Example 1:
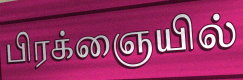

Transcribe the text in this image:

பிரக்ஞையில்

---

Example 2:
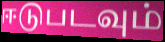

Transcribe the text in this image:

ஈடுபடவும்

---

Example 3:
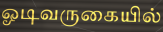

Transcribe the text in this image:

ஓடிவருகையில்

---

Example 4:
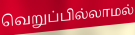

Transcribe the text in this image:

வெறுப்பில்லாமல்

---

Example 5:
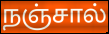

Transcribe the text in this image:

நஞ்சால்